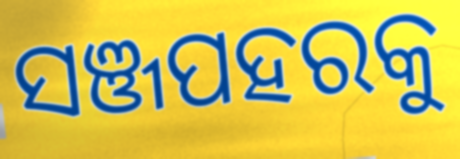
ସଞ୍ଜପହରକୁ